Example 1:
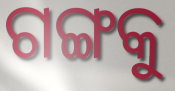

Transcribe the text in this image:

ଗଙ୍ଗକୁ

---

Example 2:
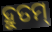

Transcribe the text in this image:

ହୁତମ୍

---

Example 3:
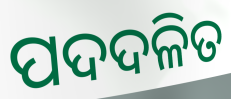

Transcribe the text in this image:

ପଦଦଳିତ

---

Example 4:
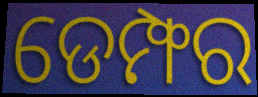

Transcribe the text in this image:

ଡେମ୍ଫର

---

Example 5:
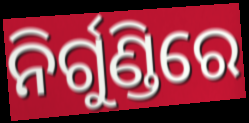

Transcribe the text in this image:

ନିର୍ଗୁଣ୍ଡିରେ